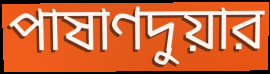
পাষাণদুয়ার